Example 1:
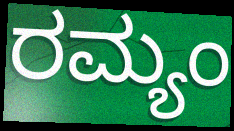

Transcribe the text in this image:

ರಮ್ಯಂ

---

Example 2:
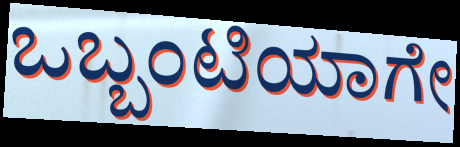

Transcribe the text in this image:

ಒಬ್ಬಂಟಿಯಾಗೇ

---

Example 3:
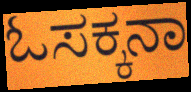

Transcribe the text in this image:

ಓಸಕ್ಕನಾ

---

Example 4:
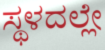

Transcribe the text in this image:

ಸ್ಥಳದಲ್ಲೇ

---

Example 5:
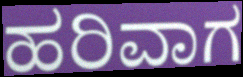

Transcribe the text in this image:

ಹರಿವಾಗ